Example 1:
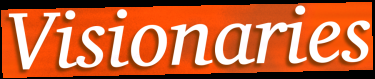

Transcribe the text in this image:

Visionaries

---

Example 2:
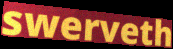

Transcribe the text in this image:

swerveth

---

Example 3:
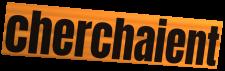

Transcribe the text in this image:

cherchaient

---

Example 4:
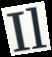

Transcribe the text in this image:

Il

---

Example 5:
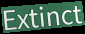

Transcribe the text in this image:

Extinct